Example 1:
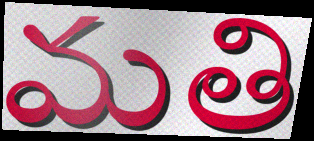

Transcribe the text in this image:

మతి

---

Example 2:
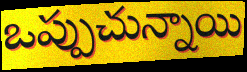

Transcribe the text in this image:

ఒప్పుచున్నాయి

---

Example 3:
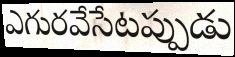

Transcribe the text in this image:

ఎగురవేసేటప్పుడు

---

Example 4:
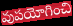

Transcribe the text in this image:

వుపయోగించి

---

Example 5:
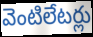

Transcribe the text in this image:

వెంటిలేటర్లు